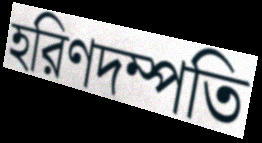
হরিণদম্পতি